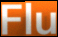
Flu